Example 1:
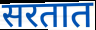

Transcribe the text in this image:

सरतात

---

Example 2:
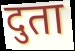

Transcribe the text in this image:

दुता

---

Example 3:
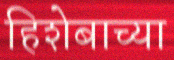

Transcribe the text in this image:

हिशेबाच्या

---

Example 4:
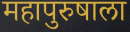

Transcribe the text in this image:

महापुरुषाला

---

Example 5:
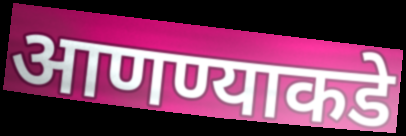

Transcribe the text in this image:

आणण्याकडे